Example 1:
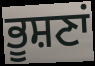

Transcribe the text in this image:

ਭੂਸ਼ਣਾਂ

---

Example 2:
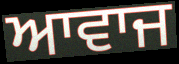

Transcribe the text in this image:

ਆਵਾਜ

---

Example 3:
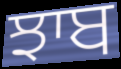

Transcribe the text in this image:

ਝਾਬ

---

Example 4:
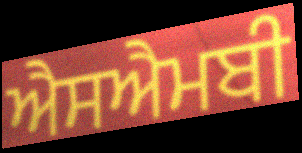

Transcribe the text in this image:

ਐਸਐਮਬੀ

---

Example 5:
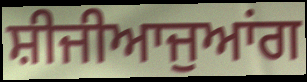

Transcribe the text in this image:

ਸ਼ੀਜੀਆਜੁਆਂਗ